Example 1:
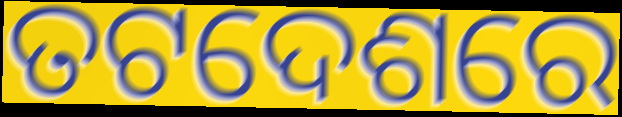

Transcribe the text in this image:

ତଟଦେଶରେ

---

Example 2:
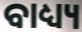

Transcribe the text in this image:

ବାଧ୍ୟ୍ୟ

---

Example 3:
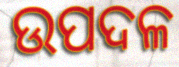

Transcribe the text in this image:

ଉପଦଳ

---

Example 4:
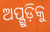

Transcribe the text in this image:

ଅପ୍ଗୁଡ଼ିକୁ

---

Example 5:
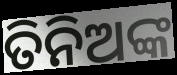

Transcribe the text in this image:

ତିନିଅଙ୍କ